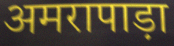
अमरापाड़ा